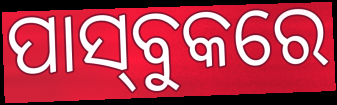
ପାସ୍‌ବୁକରେ